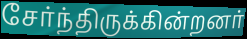
சேர்ந்திருக்கின்றனர்